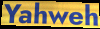
Yahweh